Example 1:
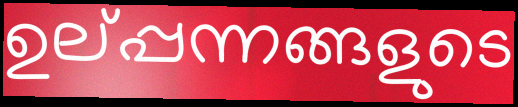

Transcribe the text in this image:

ഉല്പ്പന്നങ്ങളുടെ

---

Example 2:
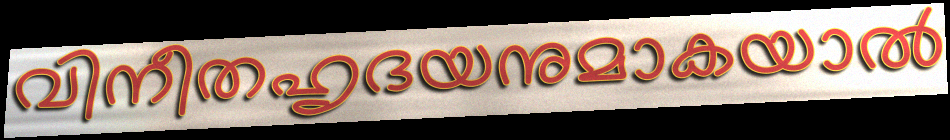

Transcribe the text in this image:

വിനീതഹൃദയനുമാകയാൽ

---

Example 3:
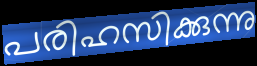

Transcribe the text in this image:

പരിഹസിക്കുന്നു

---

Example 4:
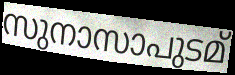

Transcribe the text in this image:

സുനാസാപുടമ്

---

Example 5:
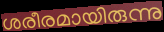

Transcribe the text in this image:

ശരീരമായിരുന്നു